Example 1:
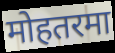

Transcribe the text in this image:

मोहतरमा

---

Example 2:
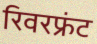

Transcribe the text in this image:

रिवरफ्रंट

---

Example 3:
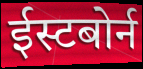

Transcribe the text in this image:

ईस्टबोर्न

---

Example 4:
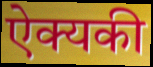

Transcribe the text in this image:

ऐक्यकी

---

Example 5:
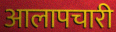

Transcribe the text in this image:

आलापचारी